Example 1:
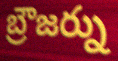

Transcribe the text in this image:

బ్రౌజర్ను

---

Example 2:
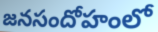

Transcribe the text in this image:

జనసందోహంలో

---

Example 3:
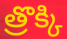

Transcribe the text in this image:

త్రొక్కి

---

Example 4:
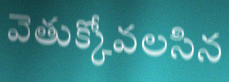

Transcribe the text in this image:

వెతుక్కోవలసిన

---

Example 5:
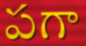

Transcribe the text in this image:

పగా